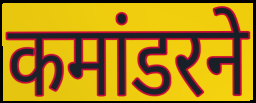
कमांडरने